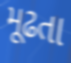
મૂઢતા